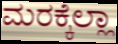
ಮರಕ್ಕೆಲ್ಲಾ